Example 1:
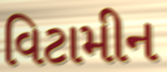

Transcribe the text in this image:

વિટામીન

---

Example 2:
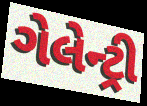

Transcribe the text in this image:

ગેલેન્ટ્રી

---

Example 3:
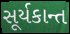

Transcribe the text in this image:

સૂર્યકાન્ત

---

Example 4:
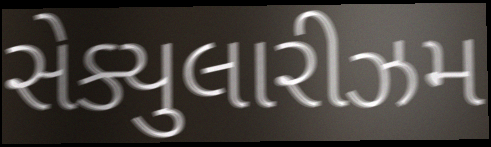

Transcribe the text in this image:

સેક્યુલારીઝમ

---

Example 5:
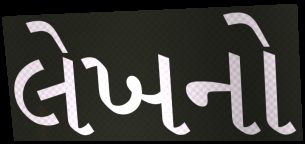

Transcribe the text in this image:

લેખનો